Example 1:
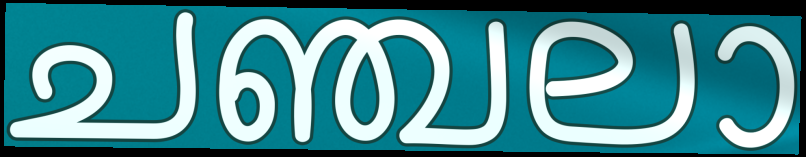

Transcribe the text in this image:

ചഞ്ചലാ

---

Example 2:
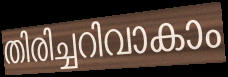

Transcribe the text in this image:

തിരിച്ചറിവാകാം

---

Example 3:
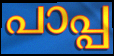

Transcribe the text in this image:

പാപ്പ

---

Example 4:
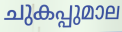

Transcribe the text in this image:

ചുകപ്പുമാല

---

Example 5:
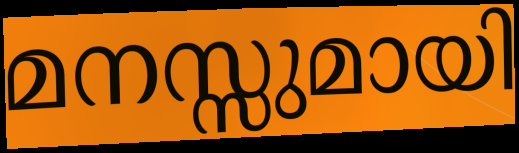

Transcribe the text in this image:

മനസ്സുമായി